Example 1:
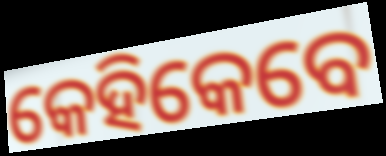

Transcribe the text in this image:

କେହିକେବେ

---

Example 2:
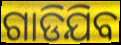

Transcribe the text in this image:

ଗାଡିଯିବ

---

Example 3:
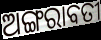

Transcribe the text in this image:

ଅଙ୍ଗରାବତୀ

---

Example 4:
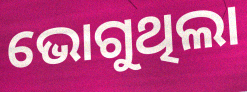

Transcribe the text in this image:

ଭୋଗୁଥିଲା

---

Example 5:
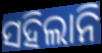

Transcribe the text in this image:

ସହିଲାନି